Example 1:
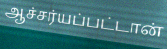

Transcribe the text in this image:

ஆச்சர்யப்பட்டான்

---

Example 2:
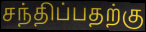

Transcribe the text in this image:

சந்திப்பதற்கு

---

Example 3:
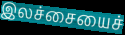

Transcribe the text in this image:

இலச்சையைச்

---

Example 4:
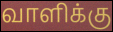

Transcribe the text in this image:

வாளிக்கு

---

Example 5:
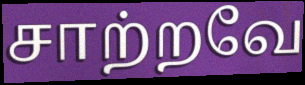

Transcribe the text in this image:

சாற்றவே